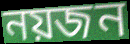
নয়জন